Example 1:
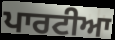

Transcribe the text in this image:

ਪਾਰਟੀਆ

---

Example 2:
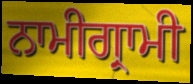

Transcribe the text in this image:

ਨਾਮੀਗ੍ਰਾਮੀ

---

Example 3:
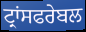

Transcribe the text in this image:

ਟ੍ਰਾਂਸਫਰੇਬਲ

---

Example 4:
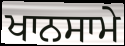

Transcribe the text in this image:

ਖਾਨਸਾਮੇ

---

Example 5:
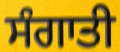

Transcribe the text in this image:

ਸੰਗਾਤੀ